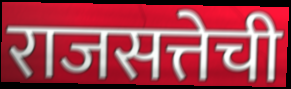
राजसत्तेची